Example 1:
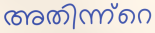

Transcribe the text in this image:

അതിന്ന്റെ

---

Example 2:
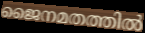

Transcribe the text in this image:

ജൈനമതത്തിൽ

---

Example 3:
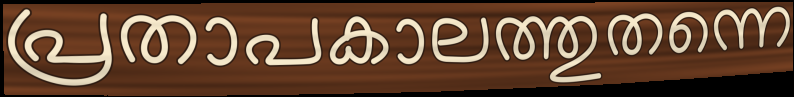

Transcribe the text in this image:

പ്രതാപകാലത്തുതന്നെ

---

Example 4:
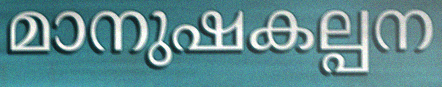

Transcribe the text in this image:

മാനുഷകല്പന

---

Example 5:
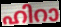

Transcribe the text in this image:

ഹിറാ